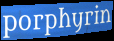
porphyrin